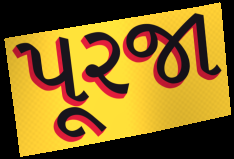
પૂરજા